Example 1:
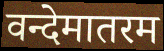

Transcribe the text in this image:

वन्देमातरम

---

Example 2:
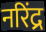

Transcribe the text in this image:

नरिंद्र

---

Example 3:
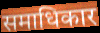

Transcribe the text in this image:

समाधिकार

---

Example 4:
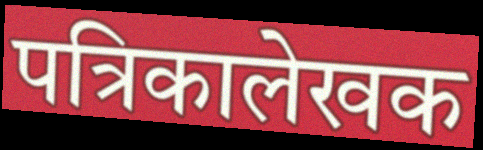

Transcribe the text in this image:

पत्रिकालेखक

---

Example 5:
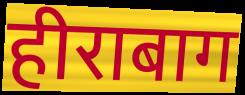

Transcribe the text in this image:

हीराबाग